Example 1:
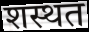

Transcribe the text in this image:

शस्थत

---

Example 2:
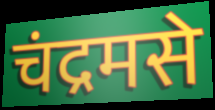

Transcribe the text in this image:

चंद्रमसे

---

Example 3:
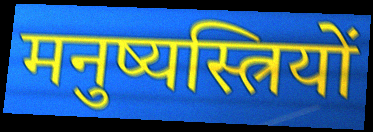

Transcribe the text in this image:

मनुष्यस्त्रियों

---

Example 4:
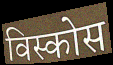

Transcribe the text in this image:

विस्कोस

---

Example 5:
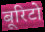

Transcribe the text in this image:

बूरिटो